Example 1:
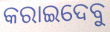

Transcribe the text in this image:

କରାଇଦେବୁ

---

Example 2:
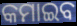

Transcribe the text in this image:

କମାଇବ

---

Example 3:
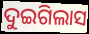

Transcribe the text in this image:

ଦୁଇଗିଲାସ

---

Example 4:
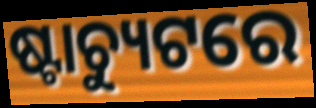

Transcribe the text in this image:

ଷ୍ଟାଚ୍ୟୁଟରେ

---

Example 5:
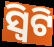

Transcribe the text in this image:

ସ୍ୱିଟି